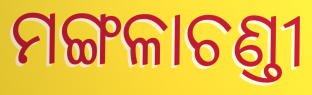
ମଙ୍ଗଳାଚଣ୍ଡୀ